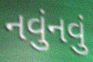
નવુંનવું